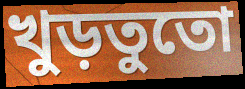
খুড়তুতো